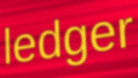
ledger